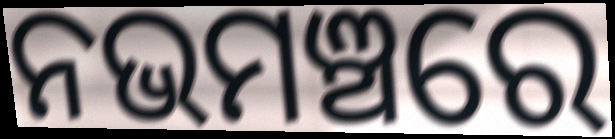
ନଭମଞ୍ଚରେ